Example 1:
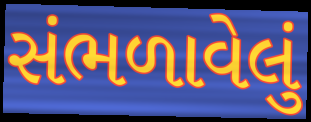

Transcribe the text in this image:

સંભળાવેલું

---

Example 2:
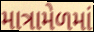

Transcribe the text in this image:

માત્રામેળમાં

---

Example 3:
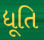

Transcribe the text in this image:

દ્યૂતિ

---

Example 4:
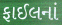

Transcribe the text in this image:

ફાઈલનાં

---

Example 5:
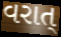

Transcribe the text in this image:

વરાત્